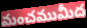
మంచముమీద